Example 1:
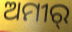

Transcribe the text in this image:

ଅମୀର୍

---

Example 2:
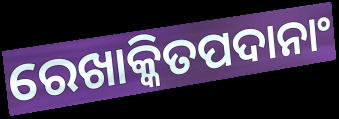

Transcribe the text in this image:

ରେଖାକ୍କିତପଦାନାଂ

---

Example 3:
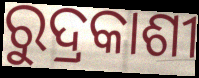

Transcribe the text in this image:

ରୁଦ୍ରକାଶୀ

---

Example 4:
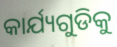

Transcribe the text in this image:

କାର୍ଯ୍ୟଗୁଡିକୁ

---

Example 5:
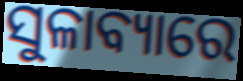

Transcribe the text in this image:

ସୁଳାବ୍ୟାରେ